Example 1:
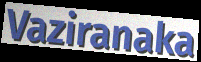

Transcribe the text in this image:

Vaziranaka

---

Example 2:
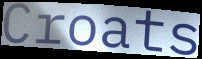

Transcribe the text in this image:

Croats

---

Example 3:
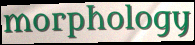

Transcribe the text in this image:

morphology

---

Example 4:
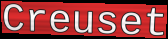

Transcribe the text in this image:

Creuset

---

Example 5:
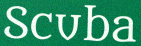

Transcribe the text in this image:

Scuba